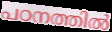
പഠനത്തിൽ